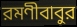
রমণীবাবুর